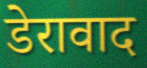
डेरावाद